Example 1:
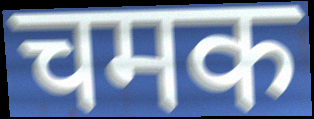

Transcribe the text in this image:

चमक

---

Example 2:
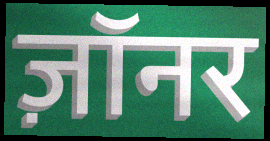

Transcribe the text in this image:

ज़ॉनर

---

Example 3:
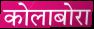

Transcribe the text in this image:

कोलाबोरा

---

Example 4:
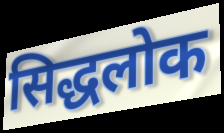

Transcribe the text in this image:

सिद्धलोक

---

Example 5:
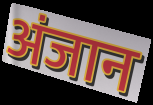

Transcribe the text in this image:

अंजान